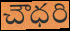
చౌధరి